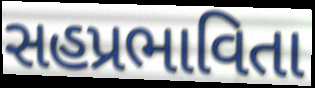
સહપ્રભાવિતા